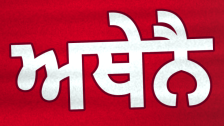
ਅਥੇਨੈ